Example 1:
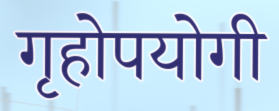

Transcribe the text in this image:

गृहोपयोगी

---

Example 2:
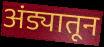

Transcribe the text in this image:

अंड्यातून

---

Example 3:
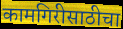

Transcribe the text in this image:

कामगिरीसाठीचा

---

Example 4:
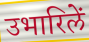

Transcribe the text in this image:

उभारिलें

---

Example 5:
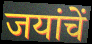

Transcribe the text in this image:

जयांचें